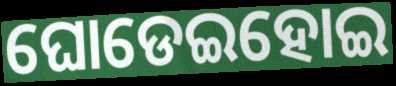
ଘୋଡେଇହୋଇ